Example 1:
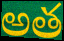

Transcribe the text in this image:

అత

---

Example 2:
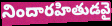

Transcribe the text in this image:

నిందారహితుడవై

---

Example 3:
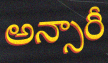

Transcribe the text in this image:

అన్సారీ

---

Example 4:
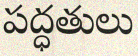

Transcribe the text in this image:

పద్ధతులు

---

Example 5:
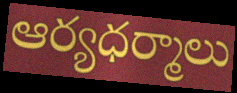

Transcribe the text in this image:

ఆర్యధర్మాలు